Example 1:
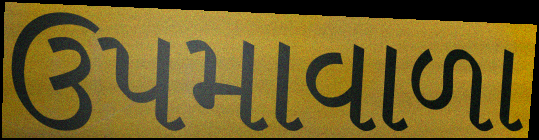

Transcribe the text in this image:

ઉપમાવાળા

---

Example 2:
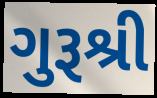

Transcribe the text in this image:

ગુરૂશ્રી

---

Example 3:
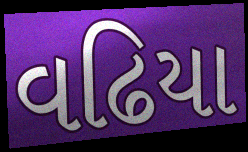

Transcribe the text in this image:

વઢિયા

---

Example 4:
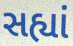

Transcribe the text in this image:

સહ્યાં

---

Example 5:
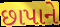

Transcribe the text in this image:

છાપાને